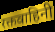
रक्तवाहिनी